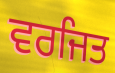
ਵਰਜਿਤ